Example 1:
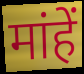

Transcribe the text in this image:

मांहें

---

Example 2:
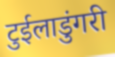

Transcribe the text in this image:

टुईलाडुंगरी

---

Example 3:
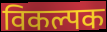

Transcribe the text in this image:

विकल्पक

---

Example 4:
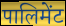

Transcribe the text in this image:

पालिमेंट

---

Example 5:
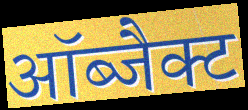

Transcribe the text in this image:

ऑब्जैक्ट